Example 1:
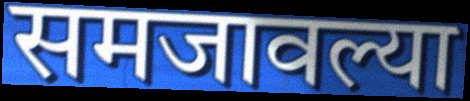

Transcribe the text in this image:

समजावल्या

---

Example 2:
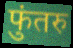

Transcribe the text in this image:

फुंतरु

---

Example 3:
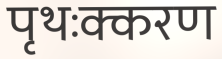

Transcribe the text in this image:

पृथःक्करण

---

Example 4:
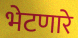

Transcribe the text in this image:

भेटणारे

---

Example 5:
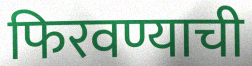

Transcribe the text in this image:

फिरवण्याची